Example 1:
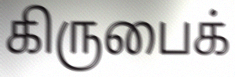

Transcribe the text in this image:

கிருபைக்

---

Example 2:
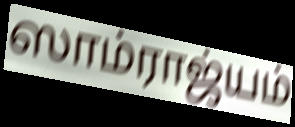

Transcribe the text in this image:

ஸாம்ராஜ்யம்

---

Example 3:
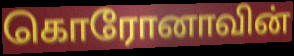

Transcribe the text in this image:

கொரோனாவின்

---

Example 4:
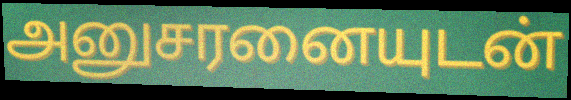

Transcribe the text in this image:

அனுசரனையுடன்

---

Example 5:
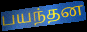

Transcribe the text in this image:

பயந்தன